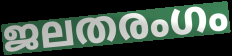
ജലതരംഗം